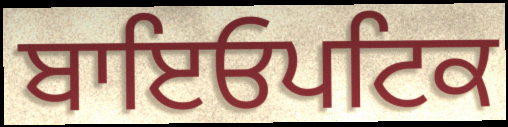
ਬਾਇਓਪਟਿਕ